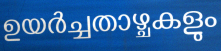
ഉയർച്ചതാഴ്ചകളും